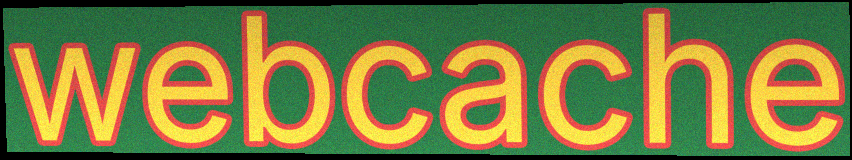
webcache